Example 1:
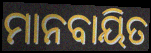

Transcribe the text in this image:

ମାନବାୟିତ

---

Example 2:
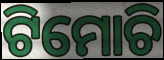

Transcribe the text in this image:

ଟିମୋଚି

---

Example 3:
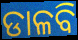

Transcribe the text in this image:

ଡାଳବି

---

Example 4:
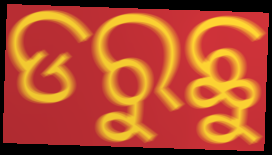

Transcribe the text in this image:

ଡରୁଛୁ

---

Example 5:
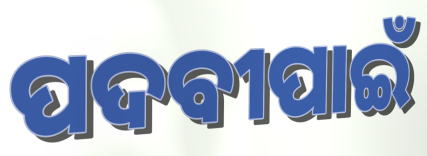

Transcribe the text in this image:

ପଦବୀପାଇଁ